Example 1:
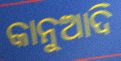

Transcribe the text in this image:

କାନୁଆଦି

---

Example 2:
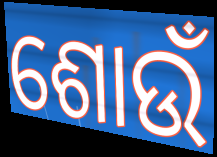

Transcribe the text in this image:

ଶୋଉଁ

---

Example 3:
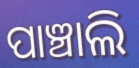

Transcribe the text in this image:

ପାଞ୍ଚାଲି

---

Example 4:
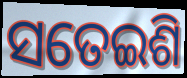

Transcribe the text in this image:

ସତେଇଶି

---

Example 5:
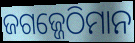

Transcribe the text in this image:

ଜଗଜ୍ଜେଠିମାନ